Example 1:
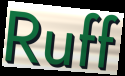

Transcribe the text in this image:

Ruff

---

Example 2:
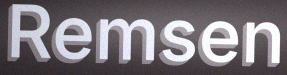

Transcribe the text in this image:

Remsen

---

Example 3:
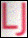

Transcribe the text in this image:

LJ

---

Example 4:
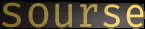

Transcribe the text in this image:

sourse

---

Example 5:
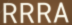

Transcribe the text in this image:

RRRA